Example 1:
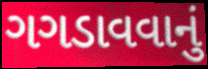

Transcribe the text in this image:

ગગડાવવાનું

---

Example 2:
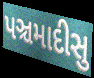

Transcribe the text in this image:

પઞ્ચમાદીસુ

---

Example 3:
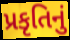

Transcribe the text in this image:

પ્રકૃતિનું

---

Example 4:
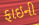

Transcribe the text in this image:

ફાઇની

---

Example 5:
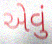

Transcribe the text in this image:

એવું